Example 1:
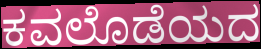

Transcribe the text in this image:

ಕವಲೊಡೆಯದ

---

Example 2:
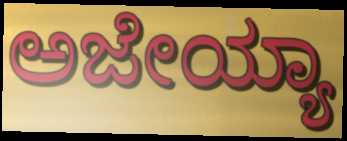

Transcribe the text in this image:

ಅಜೇಯ್ಯಾ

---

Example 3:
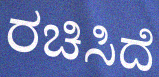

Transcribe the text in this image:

ರಚಿಸಿದೆ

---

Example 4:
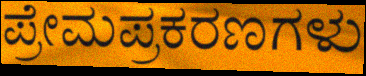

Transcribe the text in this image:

ಪ್ರೇಮಪ್ರಕರಣಗಳು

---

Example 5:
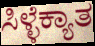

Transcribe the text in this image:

ಸಿಳ್ಳೆಕ್ಯಾತ